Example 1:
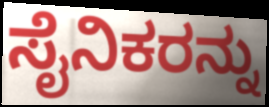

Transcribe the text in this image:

ಸೈನಿಕರನ್ನು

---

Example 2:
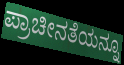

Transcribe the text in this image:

ಪ್ರಾಚೀನತೆಯನ್ನೂ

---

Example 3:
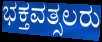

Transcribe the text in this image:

ಭಕ್ತವತ್ಸಲರು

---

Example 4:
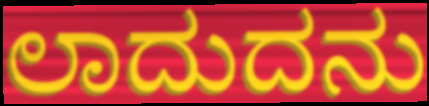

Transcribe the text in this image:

ಲಾದುದನು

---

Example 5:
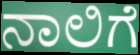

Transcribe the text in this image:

ನಾಲಿಗೆ